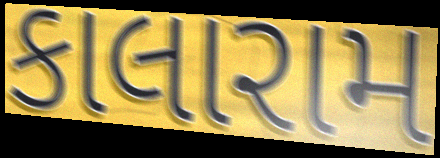
કાલારામ